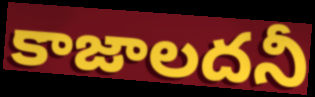
కాజాలదనీ